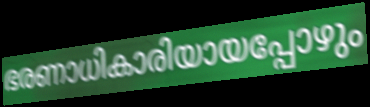
ഭരണാധികാരിയായപ്പോഴും